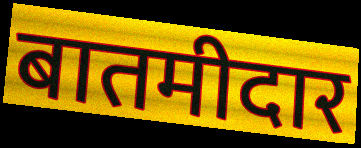
बातमीदार